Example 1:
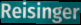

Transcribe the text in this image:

Reisinger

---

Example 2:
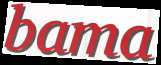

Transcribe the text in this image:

bama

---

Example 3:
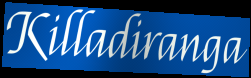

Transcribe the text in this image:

Killadiranga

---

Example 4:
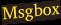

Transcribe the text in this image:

Msgbox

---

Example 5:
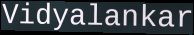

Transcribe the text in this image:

Vidyalankar